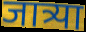
जात्र्या